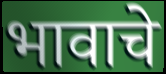
भावाचे